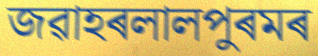
জৱাহৰলালপুৰমৰ